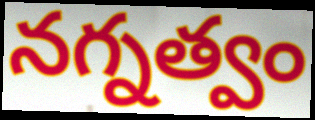
నగ్నత్వం